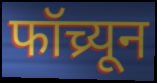
फॉच्र्यून